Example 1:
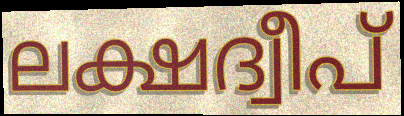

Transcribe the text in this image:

ലക്ഷദ്വീപ്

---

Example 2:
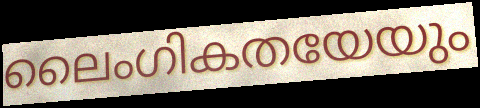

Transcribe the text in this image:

ലൈംഗികതയേയും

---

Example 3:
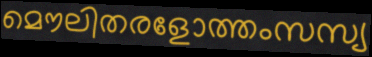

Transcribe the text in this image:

മൌലിതരളോത്തംസസ്യ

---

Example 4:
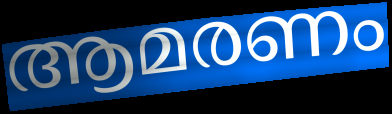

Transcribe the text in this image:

ആമരണം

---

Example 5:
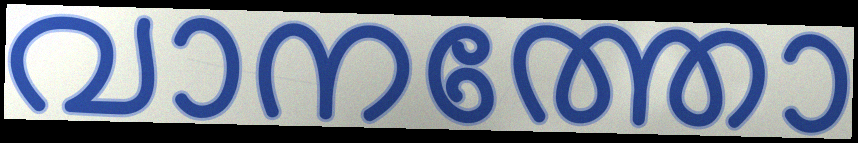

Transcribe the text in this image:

വാനത്തോ